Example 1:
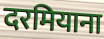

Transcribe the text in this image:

दरमियाना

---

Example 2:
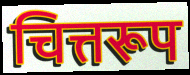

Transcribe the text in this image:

चित्तरूप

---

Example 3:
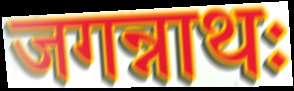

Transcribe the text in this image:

जगन्नाथः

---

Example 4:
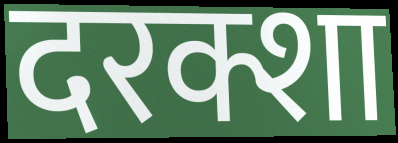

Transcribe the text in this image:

दरक्शा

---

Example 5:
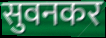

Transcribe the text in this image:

सुवनकर